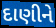
દાણીને